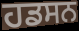
ਹਡਸਨ